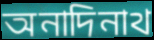
অনাদিনাথ